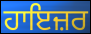
ਹਾਇਜ਼ਰ